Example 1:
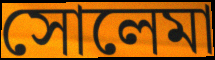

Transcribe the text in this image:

সোলেমা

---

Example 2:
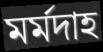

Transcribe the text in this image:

মর্মদাহ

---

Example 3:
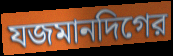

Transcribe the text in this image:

যজমানদিগের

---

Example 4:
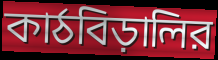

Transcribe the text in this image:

কাঠবিড়ালির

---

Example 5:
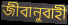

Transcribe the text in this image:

জীবানুবাহী